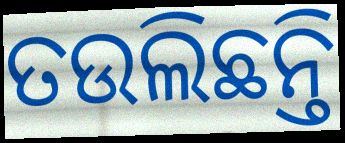
ତଉଲିଛନ୍ତି